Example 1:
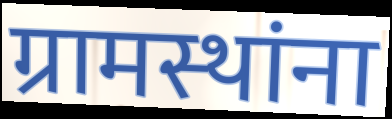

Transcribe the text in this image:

ग्रामस्थांना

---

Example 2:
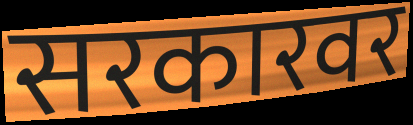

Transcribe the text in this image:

सरकारवर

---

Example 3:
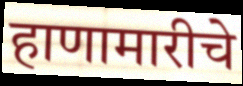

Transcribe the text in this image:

हाणामारीचे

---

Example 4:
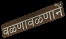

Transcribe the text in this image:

वळणावळणानें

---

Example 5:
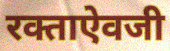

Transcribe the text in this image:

रक्ताऐवजी